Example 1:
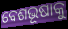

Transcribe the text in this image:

ବେଶଭୂଷାକୁ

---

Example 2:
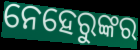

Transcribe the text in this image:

ନେହେରୁଙ୍କର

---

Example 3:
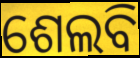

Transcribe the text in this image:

ଶେଲବି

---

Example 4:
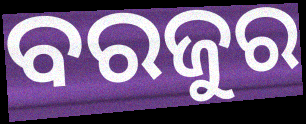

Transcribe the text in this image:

ବରଜୁର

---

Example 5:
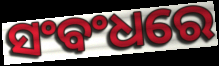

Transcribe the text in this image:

ସଂବଂଧରେ